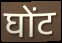
घोंट